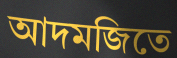
আদমজিতে